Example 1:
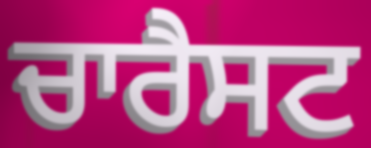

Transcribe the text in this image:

ਚਾਰੈਸਟ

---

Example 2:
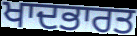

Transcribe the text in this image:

ਖਾਦਭਾਰਤ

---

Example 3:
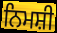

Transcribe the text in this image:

ਨਿਮਸ਼ੀ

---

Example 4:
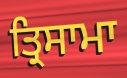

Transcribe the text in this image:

ਤ੍ਰਿਸਾਮਾ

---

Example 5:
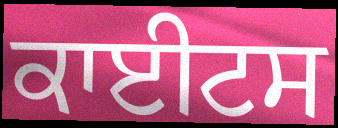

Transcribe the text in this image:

ਕਾਈਟਸ